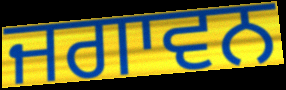
ਜਗਾਵਨ